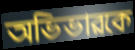
অভিভাৱকে